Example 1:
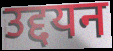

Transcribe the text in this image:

उद्दयन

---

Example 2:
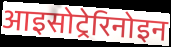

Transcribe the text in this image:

आइसोट्रेरिनोइन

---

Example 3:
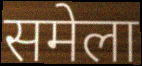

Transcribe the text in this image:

समेला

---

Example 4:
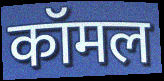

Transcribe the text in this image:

कॉमल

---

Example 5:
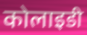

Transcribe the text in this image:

कोलाइडी